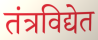
तंत्रविद्येत